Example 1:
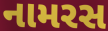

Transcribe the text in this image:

નામરસ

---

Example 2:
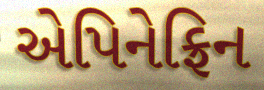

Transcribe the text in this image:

એપિનેફ્રિન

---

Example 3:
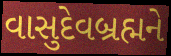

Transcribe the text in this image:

વાસુદેવબ્રહ્મને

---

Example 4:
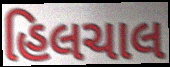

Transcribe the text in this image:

હિલચાલ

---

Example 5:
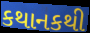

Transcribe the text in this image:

કથાનકથી